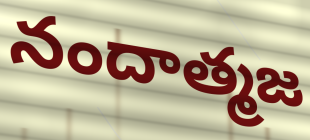
నందాత్మజ